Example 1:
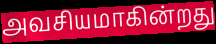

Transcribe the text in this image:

அவசியமாகின்றது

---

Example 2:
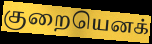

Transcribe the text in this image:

குறையெனக்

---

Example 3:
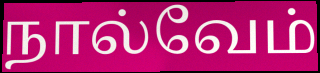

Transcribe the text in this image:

நால்வேம்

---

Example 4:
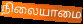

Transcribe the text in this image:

நிலையாமை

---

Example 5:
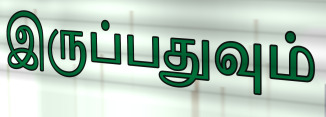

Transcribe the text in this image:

இருப்பதுவும்